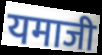
यमाजी